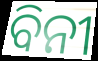
ବିନୀ